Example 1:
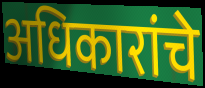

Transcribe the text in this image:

अधिकारांचे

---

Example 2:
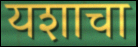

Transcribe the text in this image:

यशाचा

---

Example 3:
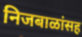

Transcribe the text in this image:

निजबाळांसह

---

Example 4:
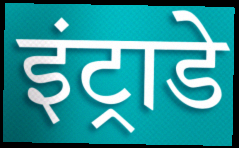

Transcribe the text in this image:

इंट्राडे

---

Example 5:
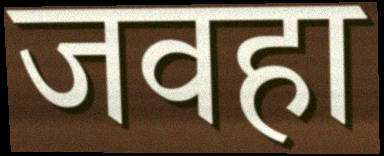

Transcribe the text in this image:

जवहा